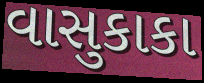
વાસુકાકા